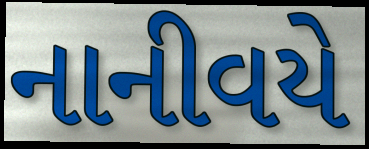
નાનીવયે